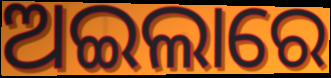
ଅଇଲାରେ